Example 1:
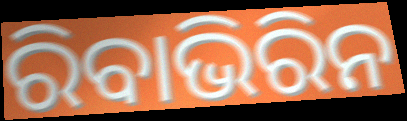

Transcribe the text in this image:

ରିବାଭିରିନ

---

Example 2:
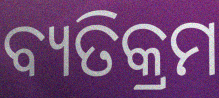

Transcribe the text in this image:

ବ୍ୟତିକ୍ରମ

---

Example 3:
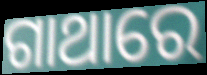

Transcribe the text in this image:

ଗାଥାରେ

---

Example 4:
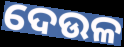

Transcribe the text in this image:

ଦେଉଳ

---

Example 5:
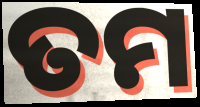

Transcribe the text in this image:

ତମ